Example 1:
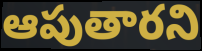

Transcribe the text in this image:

ఆపుతారని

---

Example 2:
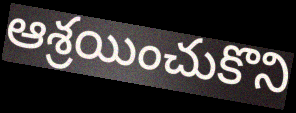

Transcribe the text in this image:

ఆశ్రయించుకొని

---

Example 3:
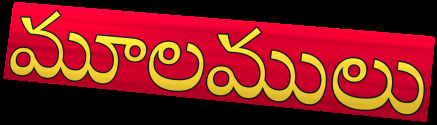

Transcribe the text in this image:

మూలములు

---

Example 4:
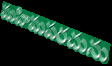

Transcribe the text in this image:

మహిమపరచును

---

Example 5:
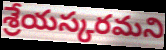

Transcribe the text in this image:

శ్రేయస్కరమని